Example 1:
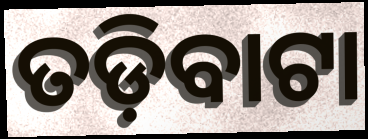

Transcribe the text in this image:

ତଡ଼ିବାଟା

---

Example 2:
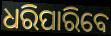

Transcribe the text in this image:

ଧରିପାରିବେ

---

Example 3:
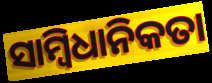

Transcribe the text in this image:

ସାମ୍ବିଧାନିକତା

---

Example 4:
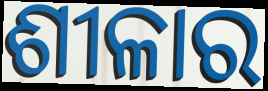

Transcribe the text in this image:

ଶୀଳାର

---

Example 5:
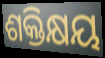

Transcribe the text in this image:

ଶକ୍ତିକ୍ଷୟ